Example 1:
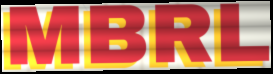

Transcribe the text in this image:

MBRL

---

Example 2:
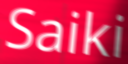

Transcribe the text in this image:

Saiki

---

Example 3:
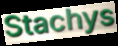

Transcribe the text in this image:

Stachys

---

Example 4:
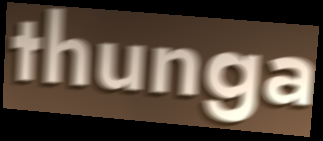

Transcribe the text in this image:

thunga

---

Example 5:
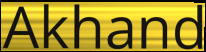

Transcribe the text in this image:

Akhand